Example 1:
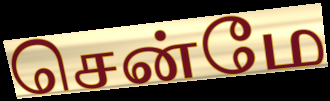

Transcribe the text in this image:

சென்மே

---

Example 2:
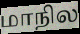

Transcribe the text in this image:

மாநில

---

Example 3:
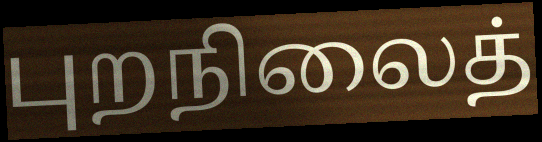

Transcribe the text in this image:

புறநிலைத்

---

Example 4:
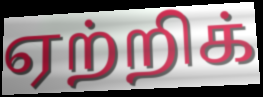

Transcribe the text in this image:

ஏற்றிக்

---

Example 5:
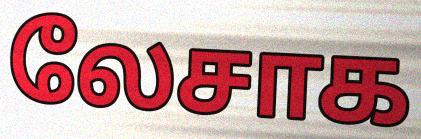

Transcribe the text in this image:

லேசாக